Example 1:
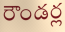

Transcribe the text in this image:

రౌండర్ల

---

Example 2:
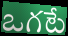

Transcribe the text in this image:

ఒగటే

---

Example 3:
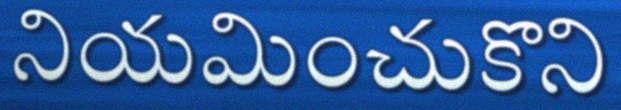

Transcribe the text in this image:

నియమించుకొని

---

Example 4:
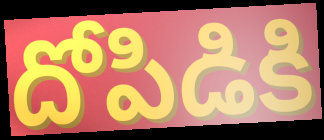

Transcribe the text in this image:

దోపిడికి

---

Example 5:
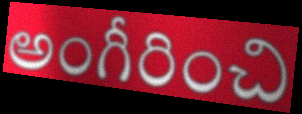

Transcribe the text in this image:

అంగీరించి